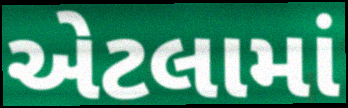
એટલામાં